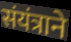
संयंत्राने